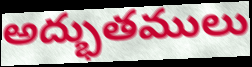
అద్భుతములు